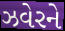
ઝવેરને